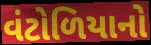
વંટોળિયાનો